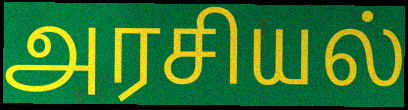
அரசியல்